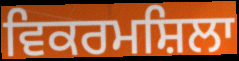
ਵਿਕਰਮਸ਼ਿਲਾ